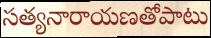
సత్యనారాయణతోపాటు